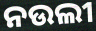
ନଉଲୀ